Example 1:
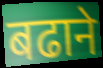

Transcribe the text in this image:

बढाने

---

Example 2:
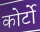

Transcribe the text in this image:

कोर्टो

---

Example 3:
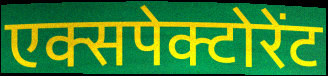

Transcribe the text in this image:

एक्सपेक्टोरेंट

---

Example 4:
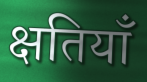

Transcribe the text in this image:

क्षतियाँ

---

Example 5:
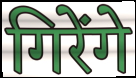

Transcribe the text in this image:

गिरेंगे